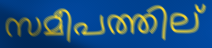
സമീപത്തില്